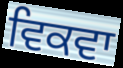
ਵਿਕਵਾ